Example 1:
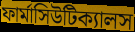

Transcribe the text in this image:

ফার্মাসিউটিক্যালস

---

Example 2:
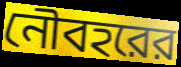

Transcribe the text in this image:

নৌবহরের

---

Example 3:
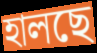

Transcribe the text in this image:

হালছে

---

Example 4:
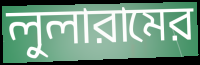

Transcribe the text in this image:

লুলারামের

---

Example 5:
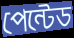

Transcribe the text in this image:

পেন্টেড